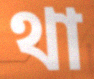
থা